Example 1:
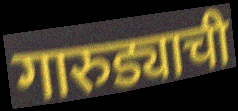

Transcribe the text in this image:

गारुड्याची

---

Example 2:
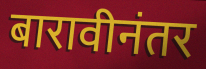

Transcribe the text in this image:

बारावीनंतर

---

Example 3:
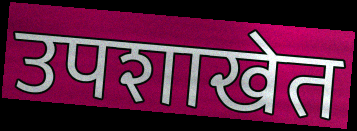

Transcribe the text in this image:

उपशाखेत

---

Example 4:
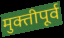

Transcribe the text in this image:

मुक्तीपूर्व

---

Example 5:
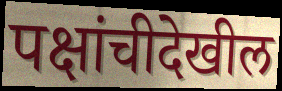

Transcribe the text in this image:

पक्षांचीदेखील